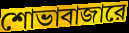
শোভাবাজারে